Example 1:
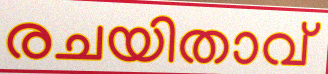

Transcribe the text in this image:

രചയിതാവ്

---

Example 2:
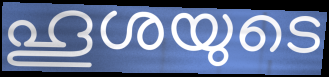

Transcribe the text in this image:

ഹൂശയുടെ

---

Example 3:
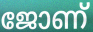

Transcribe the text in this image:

ജോണ്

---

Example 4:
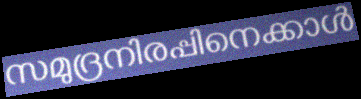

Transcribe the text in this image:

സമുദ്രനിരപ്പിനെക്കാൾ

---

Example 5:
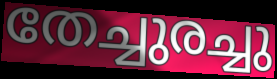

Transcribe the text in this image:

തേച്ചുരച്ചു